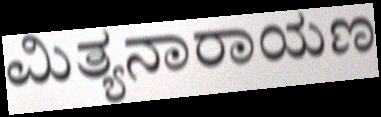
ಮಿತ್ಯನಾರಾಯಣ